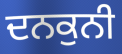
ਦਨਕੁਨੀ